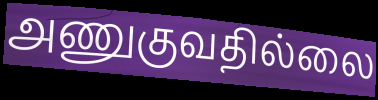
அணுகுவதில்லை